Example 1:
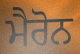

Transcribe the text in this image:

ਮੈਰੋਨ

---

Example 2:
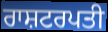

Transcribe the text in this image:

ਰਾਸ਼ਟਰਪਤੀ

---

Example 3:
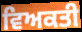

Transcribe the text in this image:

ਵਿਅਕਤੀ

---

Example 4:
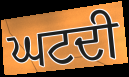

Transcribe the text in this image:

ਘਟਦੀ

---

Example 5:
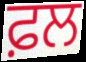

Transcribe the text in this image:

ਫ਼ਲ